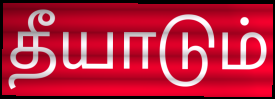
தீயாடும்